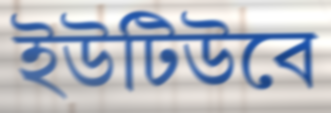
ইউটিউবে